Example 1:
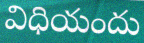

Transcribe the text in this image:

విధియందు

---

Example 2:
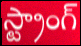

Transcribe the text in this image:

స్ట్రాంగ్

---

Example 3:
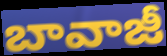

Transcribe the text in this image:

బావాజీ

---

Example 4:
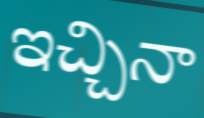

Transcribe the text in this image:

ఇచ్చినా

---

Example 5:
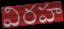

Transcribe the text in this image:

విరహ